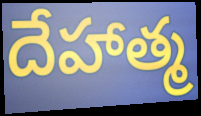
దేహాత్మ